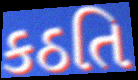
કઠતિ